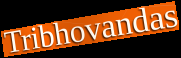
Tribhovandas